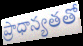
ప్రాధాన్యతతో